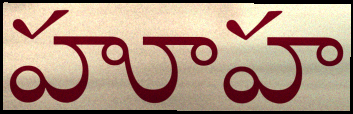
హూహ